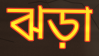
ঝড়া